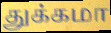
துக்கமா